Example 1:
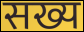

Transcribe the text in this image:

सख्य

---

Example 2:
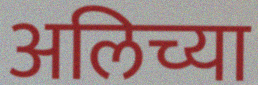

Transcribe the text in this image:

अलिच्या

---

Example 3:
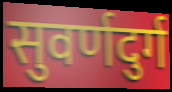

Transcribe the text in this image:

सुवर्णदुर्ग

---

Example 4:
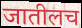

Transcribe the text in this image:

जातीलच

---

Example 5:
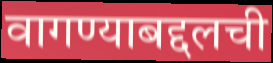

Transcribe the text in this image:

वागण्याबद्दलची